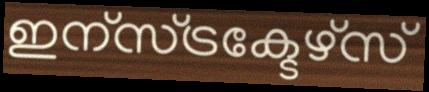
ഇന്സ്ട്രക്ടേഴ്സ്